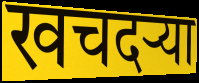
खचदऱ्या